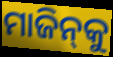
ମାଜିନ୍‌କୁ